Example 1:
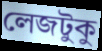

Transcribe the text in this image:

লেজটুকু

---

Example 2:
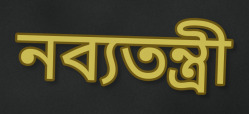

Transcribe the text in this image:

নব্যতন্ত্রী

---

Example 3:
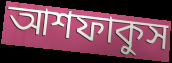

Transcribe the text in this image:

আশফাকুস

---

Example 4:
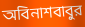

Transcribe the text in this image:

অবিনাশবাবুর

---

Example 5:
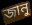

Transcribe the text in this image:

জানু